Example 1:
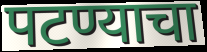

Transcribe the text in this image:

पटण्याचा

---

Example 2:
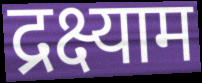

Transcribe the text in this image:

द्रक्ष्याम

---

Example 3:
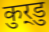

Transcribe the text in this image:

कुर्डु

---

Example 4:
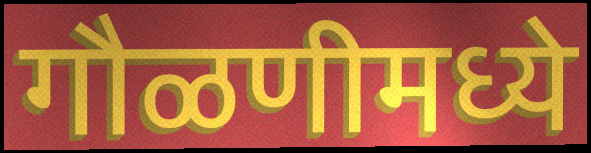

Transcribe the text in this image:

गौळणीमध्ये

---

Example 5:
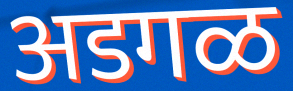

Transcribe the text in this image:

अडगळ